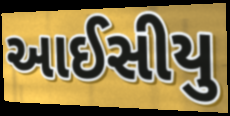
આઈસીયુ